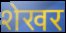
शेखर